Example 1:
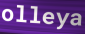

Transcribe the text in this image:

olleya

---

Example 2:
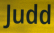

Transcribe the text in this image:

Judd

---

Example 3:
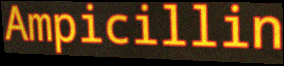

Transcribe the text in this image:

Ampicillin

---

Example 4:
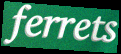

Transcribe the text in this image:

ferrets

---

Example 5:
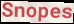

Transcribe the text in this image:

Snopes